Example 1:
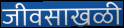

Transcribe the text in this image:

जीवसाखळी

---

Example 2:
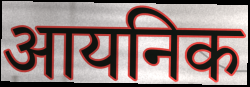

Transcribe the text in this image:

आयनिक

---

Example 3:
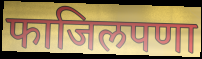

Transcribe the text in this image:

फाजिलपणा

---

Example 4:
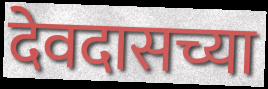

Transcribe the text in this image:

देवदासच्या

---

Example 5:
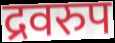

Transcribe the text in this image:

द्रवरुप